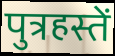
पुत्रहस्तें